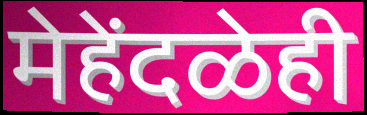
मेहेंदळेही